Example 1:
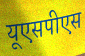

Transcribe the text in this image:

यूएसपीएस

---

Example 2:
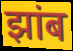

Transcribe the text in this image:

झांब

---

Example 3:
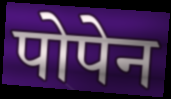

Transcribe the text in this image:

पोपेन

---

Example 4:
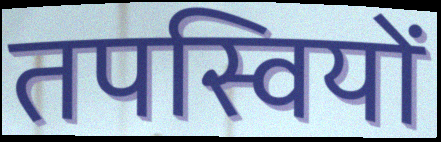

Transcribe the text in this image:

तपस्वियों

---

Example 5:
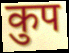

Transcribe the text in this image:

कुप